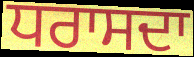
ਧਰਾਸਦਾ